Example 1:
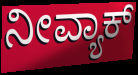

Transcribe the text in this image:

ನೀವ್ಯಾಕ್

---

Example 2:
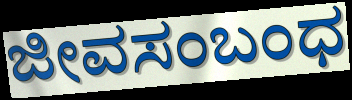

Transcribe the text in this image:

ಜೀವಸಂಬಂಧ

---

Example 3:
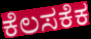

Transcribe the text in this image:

ಕೆಲಸಕೆಕ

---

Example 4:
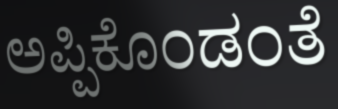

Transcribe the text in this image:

ಅಪ್ಪಿಕೊಂಡಂತೆ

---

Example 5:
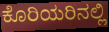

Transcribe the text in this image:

ಕೊರಿಯರಿನಲ್ಲಿ